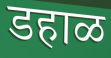
डहाळ